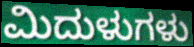
ಮಿದುಳುಗಳು